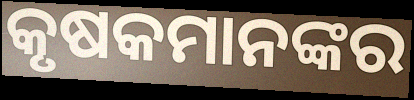
କୃଷକମାନଙ୍କର